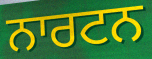
ਨਾਰਟਨ